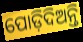
ପୋଡ଼ିଦିଅନ୍ତି